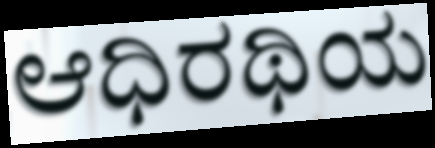
ಆಧಿರಥಿಯ